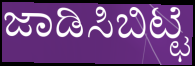
ಜಾಡಿಸಿಬಿಟ್ಟೆ